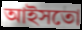
আইসতো